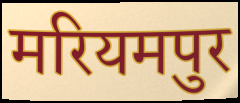
मरियमपुर